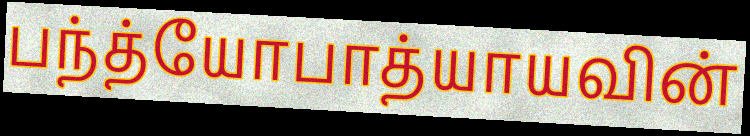
பந்த்யோபாத்யாயவின்